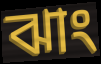
ঝাং